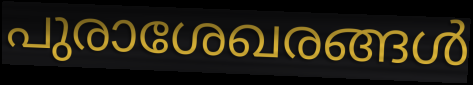
പുരാശേഖരങ്ങൾ